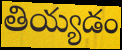
తియ్యడం